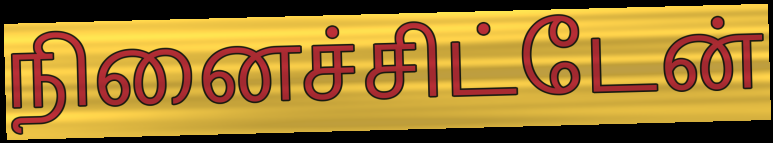
நினைச்சிட்டேன்